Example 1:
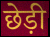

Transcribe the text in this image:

छेड़ी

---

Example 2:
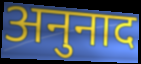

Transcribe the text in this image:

अनुनाद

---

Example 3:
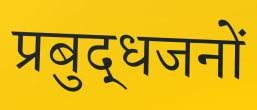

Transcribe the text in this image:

प्रबुद्धजनों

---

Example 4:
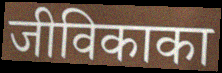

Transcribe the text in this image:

जीविकाका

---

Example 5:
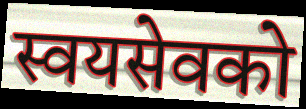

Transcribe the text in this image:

स्वयसेवको